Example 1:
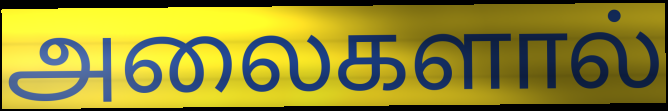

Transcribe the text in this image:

அலைகளால்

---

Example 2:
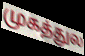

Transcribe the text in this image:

முகத்துல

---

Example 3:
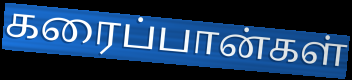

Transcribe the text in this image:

கரைப்பான்கள்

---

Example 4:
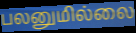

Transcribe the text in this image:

பலனுமில்லை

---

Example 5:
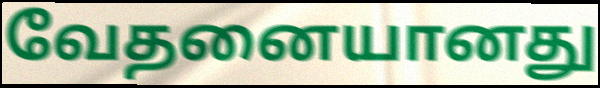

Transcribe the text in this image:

வேதனையானது